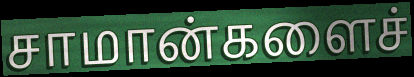
சாமான்களைச்